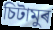
চিটামুৰ